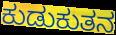
ಕುಡುಕುತನ